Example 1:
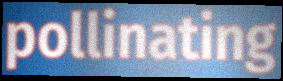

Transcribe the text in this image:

pollinating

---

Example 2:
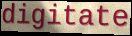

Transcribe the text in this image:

digitate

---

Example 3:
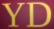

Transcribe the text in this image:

YD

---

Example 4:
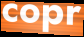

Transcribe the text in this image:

copr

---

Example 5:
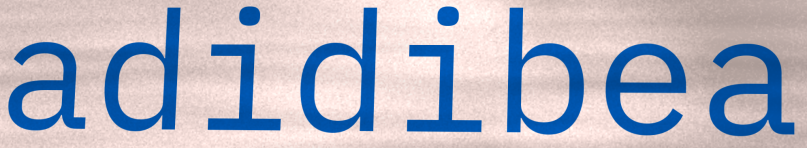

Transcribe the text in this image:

adidibea